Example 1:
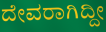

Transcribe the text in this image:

ದೇವರಾಗಿದ್ದೀ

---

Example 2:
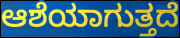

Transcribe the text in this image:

ಆಶೆಯಾಗುತ್ತದೆ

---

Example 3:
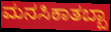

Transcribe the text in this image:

ಮನಸಿಕಾತಬ್ಬಾ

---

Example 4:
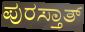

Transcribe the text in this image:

ಪುರಸ್ತಾತ್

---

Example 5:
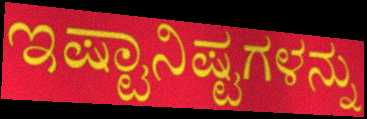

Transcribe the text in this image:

ಇಷ್ಟಾನಿಷ್ಟಗಳನ್ನು